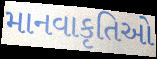
માનવાકૃતિઓ